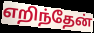
எறிந்தேன்